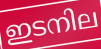
ഇടനില